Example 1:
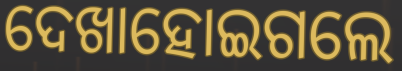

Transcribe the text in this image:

ଦେଖାହୋଇଗଲେ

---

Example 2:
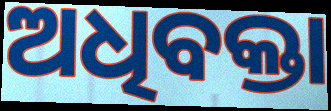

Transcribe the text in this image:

ଅଧିବକ୍ତା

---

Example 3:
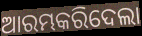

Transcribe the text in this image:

ଆରମ୍ଭକରିଦେଲା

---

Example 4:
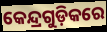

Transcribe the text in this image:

କେନ୍ଦ୍ରଗୁଡ଼ିକରେ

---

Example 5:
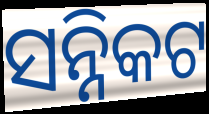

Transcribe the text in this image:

ସନ୍ନିକଟ